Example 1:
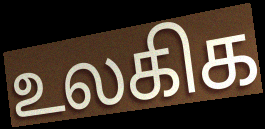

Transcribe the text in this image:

உலகிக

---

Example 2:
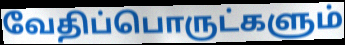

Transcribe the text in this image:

வேதிப்பொருட்களும்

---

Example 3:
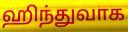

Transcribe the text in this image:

ஹிந்துவாக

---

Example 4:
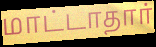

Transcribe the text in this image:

மாட்டாதார்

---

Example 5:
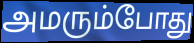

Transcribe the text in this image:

அமரும்போது